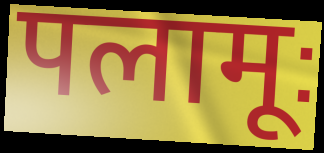
पलामूः